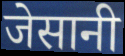
जेसानी